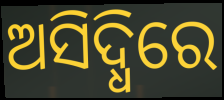
ଅସିଦ୍ଧିରେ